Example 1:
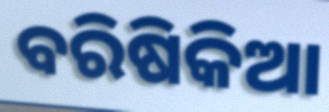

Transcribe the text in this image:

ବରିଷିକିଆ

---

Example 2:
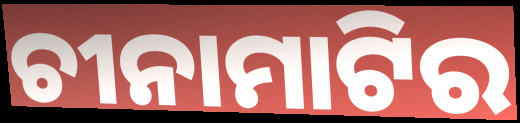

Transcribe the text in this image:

ଚୀନାମାଟିର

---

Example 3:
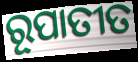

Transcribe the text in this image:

ରୂପାତୀତ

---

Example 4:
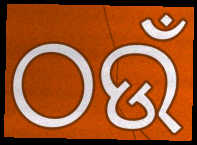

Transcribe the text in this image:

ଠଉଁ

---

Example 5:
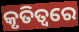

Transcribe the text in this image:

କୃତିତ୍ୱରେ